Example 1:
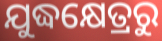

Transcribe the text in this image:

ଯୁଦ୍ଧକ୍ଷେତ୍ରରୁ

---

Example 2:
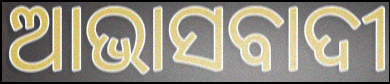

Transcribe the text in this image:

ଆଭାସବାଦୀ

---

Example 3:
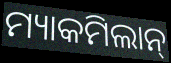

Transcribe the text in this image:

ମ୍ୟାକମିଲାନ୍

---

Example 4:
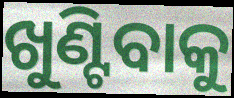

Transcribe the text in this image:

ଖୁଣ୍ଟିବାକୁ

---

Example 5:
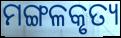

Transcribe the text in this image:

ମଙ୍ଗଳକୃତ୍ୟ